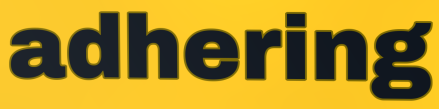
adhering